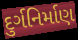
દુર્ગનિર્માણ